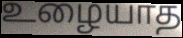
உழையாத